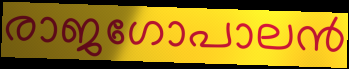
രാജഗോപാലൻ